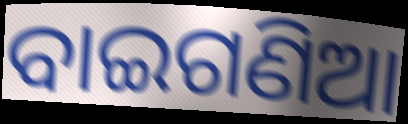
ବାଇଗଣିଆ